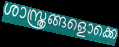
ശാസ്ത്രങ്ങളൊക്കെ